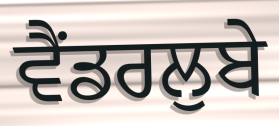
ਵੈਂਡਰਲੁਬੇ